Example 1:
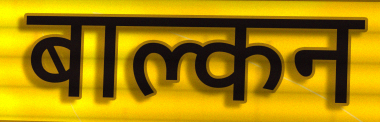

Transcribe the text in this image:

बाल्कन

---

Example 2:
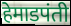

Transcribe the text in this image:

हेमाडपंती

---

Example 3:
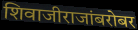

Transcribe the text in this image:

शिवाजीराजांबरोबर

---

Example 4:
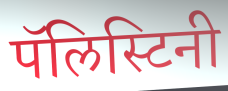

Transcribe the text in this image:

पॅलिस्टिनी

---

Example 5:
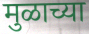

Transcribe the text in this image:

मुळाच्या